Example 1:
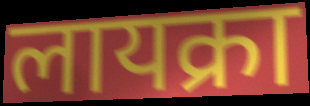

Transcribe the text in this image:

लायक्रा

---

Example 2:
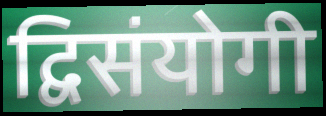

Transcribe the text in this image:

द्विसंयोगी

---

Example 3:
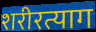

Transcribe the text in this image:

शरीरत्याग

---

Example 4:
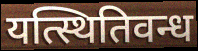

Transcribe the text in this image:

यत्स्थितिवन्ध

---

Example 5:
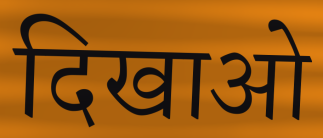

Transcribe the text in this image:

दिखाओ